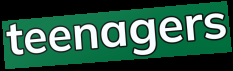
teenagers